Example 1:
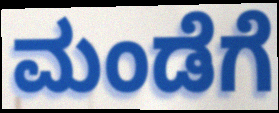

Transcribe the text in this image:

ಮಂಡೆಗೆ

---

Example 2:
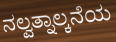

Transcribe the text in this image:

ನಲ್ವತ್ನಾಲ್ಕನೆಯ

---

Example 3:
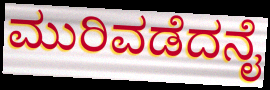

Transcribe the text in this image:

ಮುರಿವಡೆದನೈ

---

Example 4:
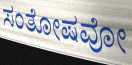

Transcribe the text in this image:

ಸಂತೋಷವೋ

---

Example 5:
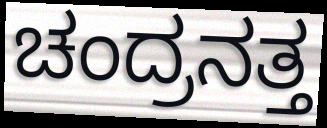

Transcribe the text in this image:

ಚಂದ್ರನತ್ತ